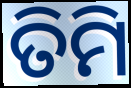
ତିମି